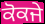
ਕੋਕਜੇ